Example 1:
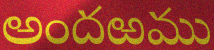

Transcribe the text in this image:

అందఱము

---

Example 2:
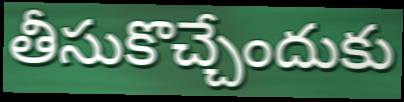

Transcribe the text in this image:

తీసుకొచ్చేందుకు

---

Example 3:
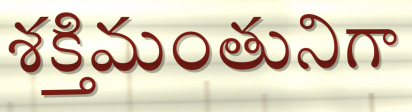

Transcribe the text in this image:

శక్తిమంతునిగా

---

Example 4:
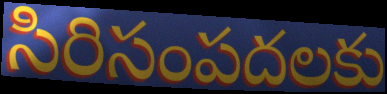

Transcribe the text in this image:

సిరిసంపదలకు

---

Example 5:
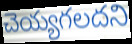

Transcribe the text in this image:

చెయ్యగలదని